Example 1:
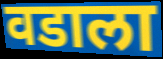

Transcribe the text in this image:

वडाला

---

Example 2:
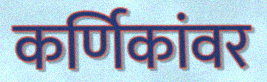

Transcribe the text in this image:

कर्णिकांवर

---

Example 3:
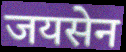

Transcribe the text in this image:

जयसेन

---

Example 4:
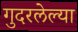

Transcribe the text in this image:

गुदरलेल्या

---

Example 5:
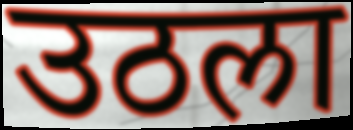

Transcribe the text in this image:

उठला